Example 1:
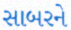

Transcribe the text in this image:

સાબરને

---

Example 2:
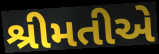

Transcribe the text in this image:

શ્રીમતીએ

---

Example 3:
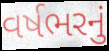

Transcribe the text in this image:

વર્ષભરનું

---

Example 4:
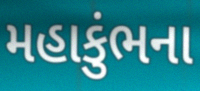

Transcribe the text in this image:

મહાકુંભના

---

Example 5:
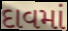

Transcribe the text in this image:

દાવમાં